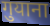
गुयाना